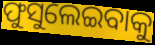
ଫୁସୁଲେଇବାକୁ